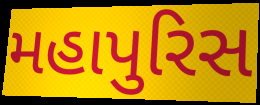
મહાપુરિસ